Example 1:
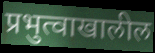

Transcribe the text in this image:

प्रभुत्वाखालील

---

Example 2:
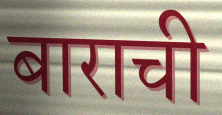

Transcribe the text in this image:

बाराची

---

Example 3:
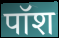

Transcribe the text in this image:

पॉश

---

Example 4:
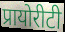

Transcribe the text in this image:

प्रायोरीटी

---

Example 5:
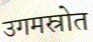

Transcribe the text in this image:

उगमस्रोत